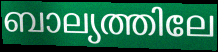
ബാല്യത്തിലേ